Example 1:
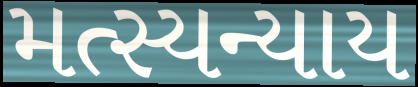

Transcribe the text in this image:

મત્સ્યન્યાય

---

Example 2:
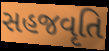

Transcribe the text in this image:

સહજવૃતિ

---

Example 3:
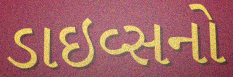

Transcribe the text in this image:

ડાઇવ્સનો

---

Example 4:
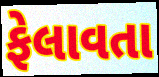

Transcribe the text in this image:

ફેલાવતા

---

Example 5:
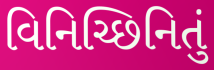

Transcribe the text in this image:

વિનિચ્છિનિતું